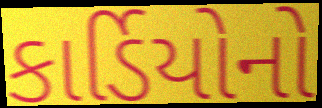
કાર્ડિયોનો